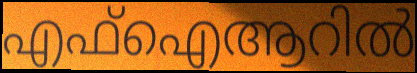
എഫ്ഐആറിൽ